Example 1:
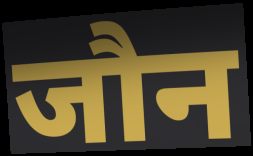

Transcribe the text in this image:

जौन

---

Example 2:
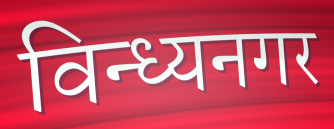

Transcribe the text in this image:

विन्ध्यनगर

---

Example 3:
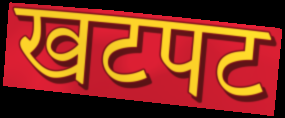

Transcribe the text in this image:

खटपट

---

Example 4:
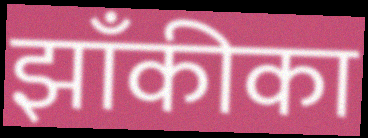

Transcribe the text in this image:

झाँकीका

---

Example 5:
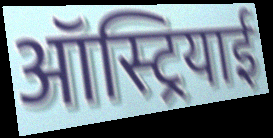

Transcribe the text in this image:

ऑस्ट्रियाई